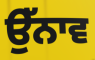
ਉੱਨਾਵ